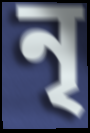
নৃ